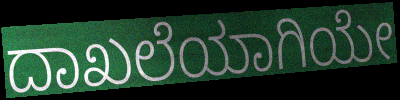
ದಾಖಲೆಯಾಗಿಯೇ